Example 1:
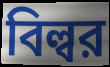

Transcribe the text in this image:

বিল্বর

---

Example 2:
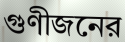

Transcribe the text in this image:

গুণীজনের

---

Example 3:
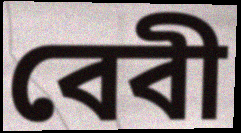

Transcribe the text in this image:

বেবী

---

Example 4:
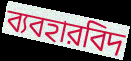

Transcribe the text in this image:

ব্যবহারবিদ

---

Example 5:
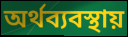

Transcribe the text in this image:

অর্থব্যবস্থায়